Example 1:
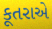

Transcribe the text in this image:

કૂતરાએ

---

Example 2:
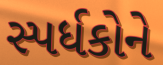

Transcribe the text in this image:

સ્પર્ધકોને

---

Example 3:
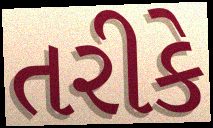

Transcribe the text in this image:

તરીકે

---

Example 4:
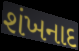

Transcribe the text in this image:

શંખનાદ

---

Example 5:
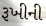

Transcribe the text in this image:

રૂખીની